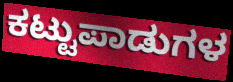
ಕಟ್ಟುಪಾಡುಗಳ